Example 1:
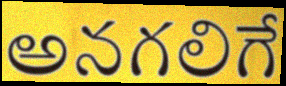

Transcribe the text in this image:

అనగలిగే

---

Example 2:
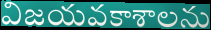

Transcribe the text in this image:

విజయవకాశాలను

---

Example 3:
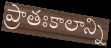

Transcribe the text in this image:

ప్రాతఃకాలాన్ని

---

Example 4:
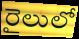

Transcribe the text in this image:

రైలులో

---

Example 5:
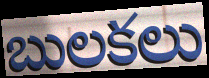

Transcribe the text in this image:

బులకలు